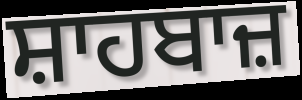
ਸ਼ਾਹਬਾਜ਼